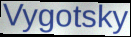
Vygotsky